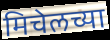
मिचेलच्या